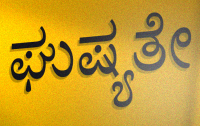
ಘುಷ್ಯತೇ